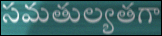
సమతుల్యతగా